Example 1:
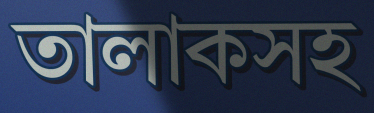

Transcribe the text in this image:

তালাকসহ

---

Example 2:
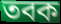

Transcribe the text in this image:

তবক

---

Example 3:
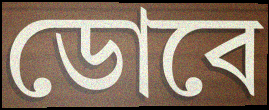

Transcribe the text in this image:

ডোবে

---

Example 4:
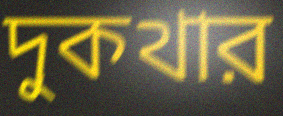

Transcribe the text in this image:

দুকথার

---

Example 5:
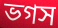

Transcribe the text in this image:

ভগস